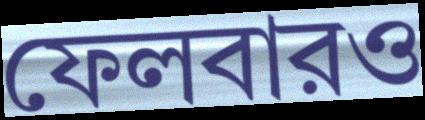
ফেলবারও